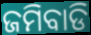
ଜମିବାଡି